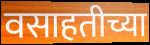
वसाहतीच्या